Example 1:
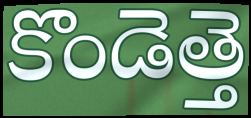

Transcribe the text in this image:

కొండెత్తె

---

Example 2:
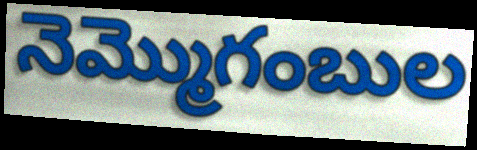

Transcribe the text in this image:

నెమ్మొగంబుల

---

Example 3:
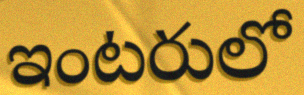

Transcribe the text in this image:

ఇంటరులో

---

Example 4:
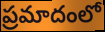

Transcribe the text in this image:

ప్రమాదంలో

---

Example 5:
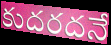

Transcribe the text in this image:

కుదరదనే